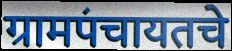
ग्रामपंचायतचे